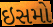
ઇસમો